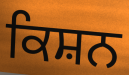
ਕਿਸ਼ਨ